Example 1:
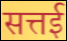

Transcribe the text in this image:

सत्तई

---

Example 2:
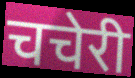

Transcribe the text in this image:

चचेरी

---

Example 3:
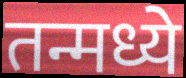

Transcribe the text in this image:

तन्मध्ये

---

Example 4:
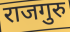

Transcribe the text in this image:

राजगुरु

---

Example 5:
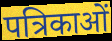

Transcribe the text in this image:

पत्रिकाओं